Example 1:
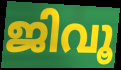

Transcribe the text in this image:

ജിവൂ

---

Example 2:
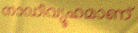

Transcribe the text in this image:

നാഡീവ്യൂഹമാണ്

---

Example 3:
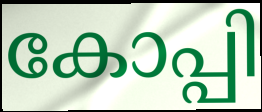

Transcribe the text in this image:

കോപ്പി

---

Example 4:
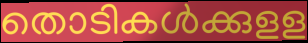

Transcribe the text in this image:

തൊടികൾക്കുളള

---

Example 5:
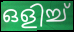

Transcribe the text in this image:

ഒളിച്ച്